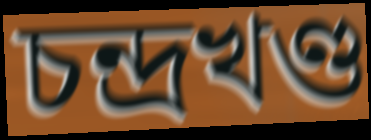
চন্দ্রখণ্ড